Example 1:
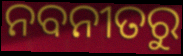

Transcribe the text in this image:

ନବନୀତରୁ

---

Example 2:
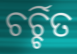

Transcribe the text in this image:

ଚର୍ଚ୍ଚିତ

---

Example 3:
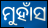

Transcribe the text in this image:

ମୁହାଁସ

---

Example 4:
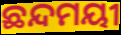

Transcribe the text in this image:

ଛନ୍ଦମୟୀ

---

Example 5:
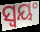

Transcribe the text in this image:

ସ୍ଵୟଂ